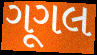
ગૂગલ